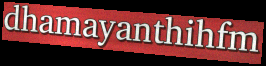
dhamayanthihfm